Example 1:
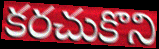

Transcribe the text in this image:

కరచుకొని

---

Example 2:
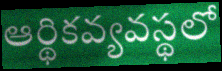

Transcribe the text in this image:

ఆర్థికవ్యవస్థలో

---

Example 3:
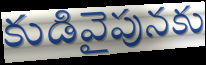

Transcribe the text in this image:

కుడివైపునకు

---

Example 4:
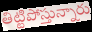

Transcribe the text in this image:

తిట్టిపోస్తున్నారు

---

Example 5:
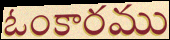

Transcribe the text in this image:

ఓంకారము